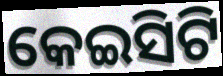
କେଇସିଟି